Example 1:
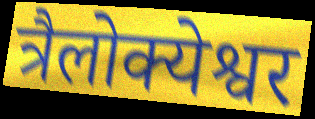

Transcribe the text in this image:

त्रैलोक्येश्वर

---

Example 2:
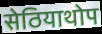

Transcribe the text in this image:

सेठियाथोप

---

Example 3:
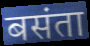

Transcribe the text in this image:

बसंता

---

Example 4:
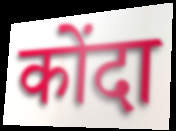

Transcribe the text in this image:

कोंदा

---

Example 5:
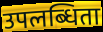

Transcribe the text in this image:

उपलब्धिता